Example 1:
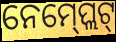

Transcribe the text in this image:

ନେମ୍‍ପ୍ଲେଟ୍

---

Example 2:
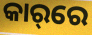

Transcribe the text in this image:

କାର୍‌ରେ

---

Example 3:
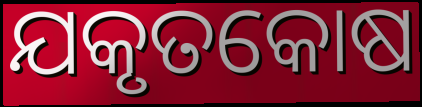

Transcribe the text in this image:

ଯକୃତକୋଷ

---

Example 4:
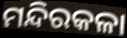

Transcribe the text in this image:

ମନ୍ଦିରକଳା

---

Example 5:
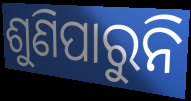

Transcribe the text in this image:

ଶୁଣିପାରୁନି